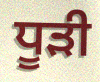
ਧੂੜੀ